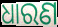
ଧାରଣ